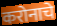
करोनाचे